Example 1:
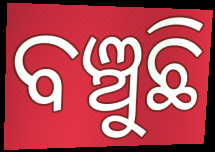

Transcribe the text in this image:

ବଞ୍ଚୁଛି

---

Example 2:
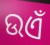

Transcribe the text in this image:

ଉଏଁ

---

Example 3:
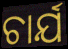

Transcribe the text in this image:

ଚାର୍ଯ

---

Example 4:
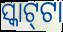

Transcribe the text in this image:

ସ୍କାଟ୍‌ଟା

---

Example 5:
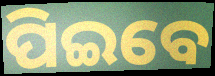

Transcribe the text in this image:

ପିଇବେ